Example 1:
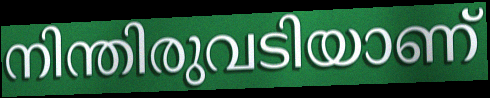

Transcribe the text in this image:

നിന്തിരുവടിയാണ്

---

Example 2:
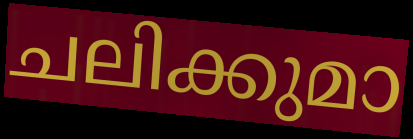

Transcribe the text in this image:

ചലിക്കുമാ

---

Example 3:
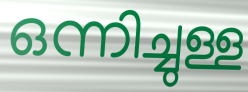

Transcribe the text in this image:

ഒന്നിച്ചുള്ള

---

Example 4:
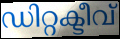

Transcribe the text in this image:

ഡിറ്റക്ടീവ്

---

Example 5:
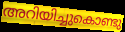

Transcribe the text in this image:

അറിയിച്ചുകൊണ്ടു